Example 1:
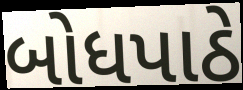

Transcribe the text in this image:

બોધપાઠે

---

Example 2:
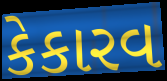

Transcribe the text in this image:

કેકારવ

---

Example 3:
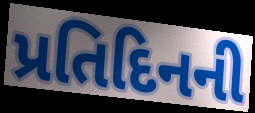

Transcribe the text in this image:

પ્રતિદિનની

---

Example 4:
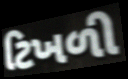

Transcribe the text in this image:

ટિખળી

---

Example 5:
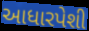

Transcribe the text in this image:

આધારપેશી